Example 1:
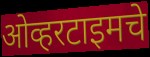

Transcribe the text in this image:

ओव्हरटाइमचे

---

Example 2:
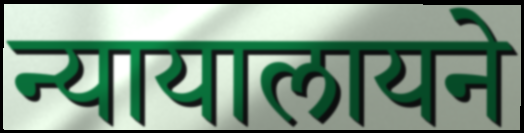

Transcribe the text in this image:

न्यायालायने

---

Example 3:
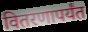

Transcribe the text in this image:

वितरणापर्यंत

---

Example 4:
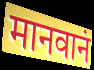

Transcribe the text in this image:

मानवानं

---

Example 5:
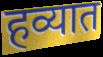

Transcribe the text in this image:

हव्यात